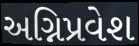
અગ્નિપ્રવેશ